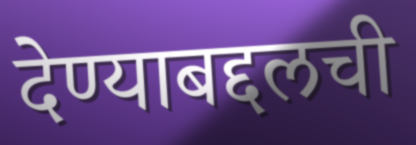
देण्याबद्दलची